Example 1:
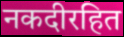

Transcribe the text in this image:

नकदीरहित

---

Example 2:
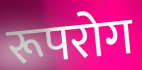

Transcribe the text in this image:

रूपरोग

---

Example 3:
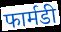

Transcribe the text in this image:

फार्मडी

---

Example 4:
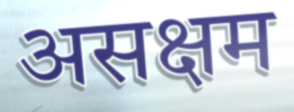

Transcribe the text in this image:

असक्षम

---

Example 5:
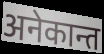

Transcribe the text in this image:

अनेकान्त